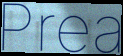
Prea